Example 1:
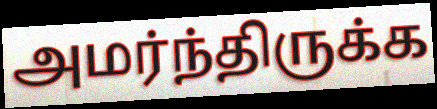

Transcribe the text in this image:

அமர்ந்திருக்க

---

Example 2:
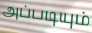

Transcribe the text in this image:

அப்படியும்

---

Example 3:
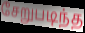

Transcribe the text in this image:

சேறுபடிந்த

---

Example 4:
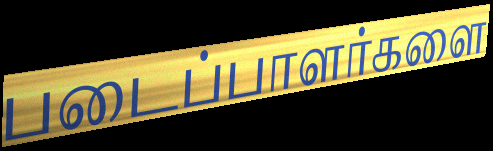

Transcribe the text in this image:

படைப்பாளர்களை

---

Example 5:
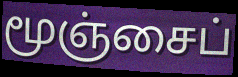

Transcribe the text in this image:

மூஞ்சைப்